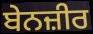
ਬੇਨਜ਼ੀਰ